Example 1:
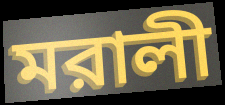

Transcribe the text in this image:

মরালী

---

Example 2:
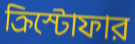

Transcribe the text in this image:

ক্রিস্টোফার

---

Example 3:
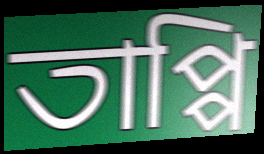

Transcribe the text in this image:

তাপ্পি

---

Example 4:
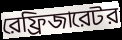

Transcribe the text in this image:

রেফ্রিজারেটর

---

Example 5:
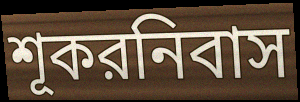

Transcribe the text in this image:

শূকরনিবাস